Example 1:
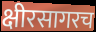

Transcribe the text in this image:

क्षीरसागरच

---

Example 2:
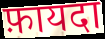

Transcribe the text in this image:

फ़ायदा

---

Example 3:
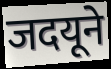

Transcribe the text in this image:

जदयूने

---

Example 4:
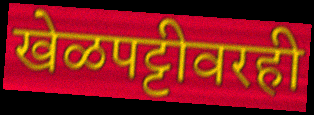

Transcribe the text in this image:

खेळपट्टीवरही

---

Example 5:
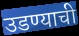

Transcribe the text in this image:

उडण्याची